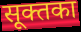
सूक्तका